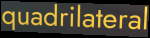
quadrilateral